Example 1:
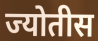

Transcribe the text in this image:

ज्योतीस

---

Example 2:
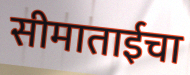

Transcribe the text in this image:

सीमाताईचा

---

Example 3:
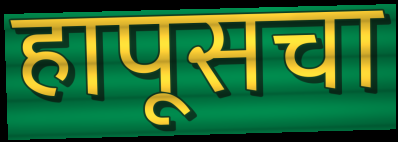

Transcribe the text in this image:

हापूसचा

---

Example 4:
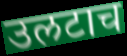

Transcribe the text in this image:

उलटाच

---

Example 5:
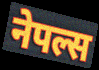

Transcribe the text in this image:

नेपल्स